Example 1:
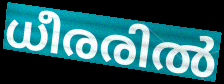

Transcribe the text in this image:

ധീരരിൽ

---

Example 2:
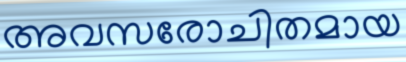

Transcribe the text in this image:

അവസരോചിതമായ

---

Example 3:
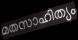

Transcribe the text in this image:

മതസാഹിത്യം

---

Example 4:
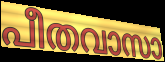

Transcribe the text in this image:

പീതവാസാ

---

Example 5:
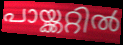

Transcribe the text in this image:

പായ്ക്കറ്റിൽ